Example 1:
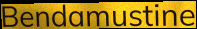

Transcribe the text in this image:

Bendamustine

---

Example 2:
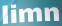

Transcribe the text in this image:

limn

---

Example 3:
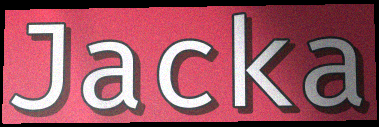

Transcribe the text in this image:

Jacka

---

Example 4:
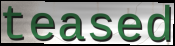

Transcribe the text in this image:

teased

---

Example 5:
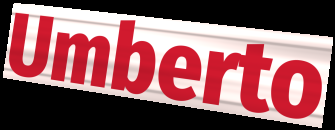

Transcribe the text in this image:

Umberto